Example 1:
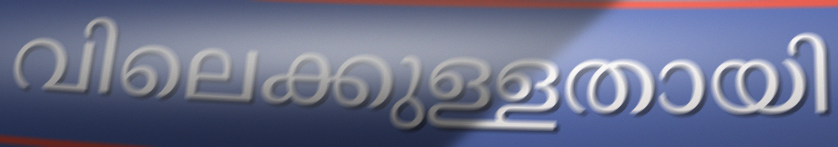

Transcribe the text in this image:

വിലെക്കുള്ളതായി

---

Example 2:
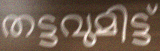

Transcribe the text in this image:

തട്ടവുമിട്ട്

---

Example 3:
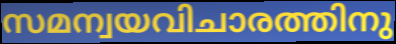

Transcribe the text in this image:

സമന്വയവിചാരത്തിനു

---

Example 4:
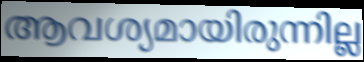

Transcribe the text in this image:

ആവശ്യമായിരുന്നില്ല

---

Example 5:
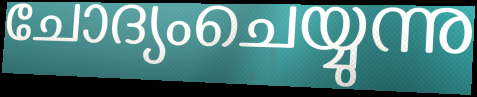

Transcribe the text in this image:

ചോദ്യംചെയ്യുന്നു